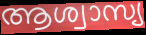
ആശ്വാസ്യ